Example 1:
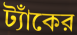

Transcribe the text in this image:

ট্যাঁকের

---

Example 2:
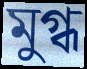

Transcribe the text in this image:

মুগ্ধ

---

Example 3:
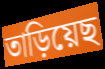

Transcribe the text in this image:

তাড়িয়েছ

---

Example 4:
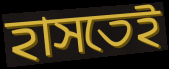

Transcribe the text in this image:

হাসতেই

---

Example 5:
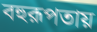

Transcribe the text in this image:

বহুরূপতায়